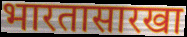
भारतासारखा